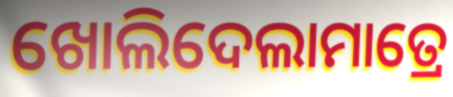
ଖୋଲିଦେଲାମାତ୍ରେ